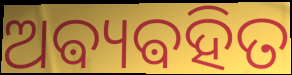
ଅଵ୍ୟଵହିତ